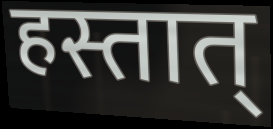
हस्तात्